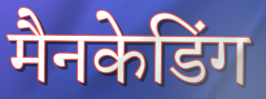
मैनकेडिंग